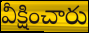
వీక్షించారు